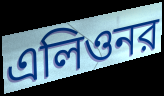
এলিওনর